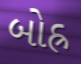
બોહ્ર